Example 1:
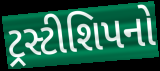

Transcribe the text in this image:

ટ્રસ્ટીશિપનો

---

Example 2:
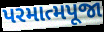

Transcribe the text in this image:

પરમાત્મપૂજા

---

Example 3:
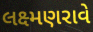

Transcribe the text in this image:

લક્ષ્મણરાવે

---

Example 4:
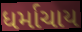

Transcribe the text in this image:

ધર્માચાય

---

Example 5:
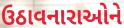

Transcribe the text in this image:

ઉઠાવનારાઓને